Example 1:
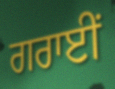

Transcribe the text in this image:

ਗਰਾਈਂ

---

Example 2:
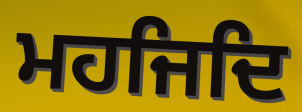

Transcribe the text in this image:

ਮਹਜਿਦਿ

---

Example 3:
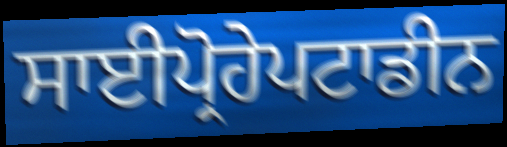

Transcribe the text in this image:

ਸਾਈਪ੍ਰੋਹੇਪਟਾਡੀਨ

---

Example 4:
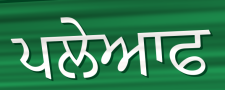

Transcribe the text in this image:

ਪਲੇਆਫ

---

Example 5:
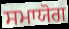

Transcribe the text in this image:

ਸਮਾਯੋਗ